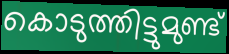
കൊടുത്തിട്ടുമുണ്ട്